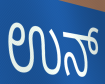
ಉನ್